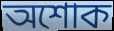
অশোক